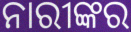
ନାରୀଙ୍କର